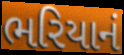
ભરિયાનં